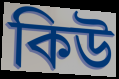
কিউ